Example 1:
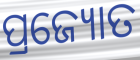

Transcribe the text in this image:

ପ୍ରଜ୍ୟୋତ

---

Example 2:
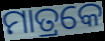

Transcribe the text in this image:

ମାତ୍ରକେ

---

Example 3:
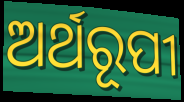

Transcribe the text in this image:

ଅର୍ଥରୂପୀ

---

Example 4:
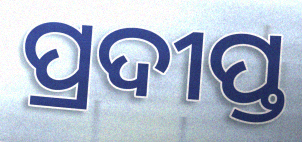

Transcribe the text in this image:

ପ୍ରଦୀପ୍ତ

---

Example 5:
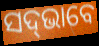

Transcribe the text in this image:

ସଦ୍‌ଭାବେ